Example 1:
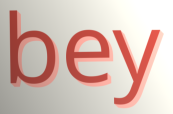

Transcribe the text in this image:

bey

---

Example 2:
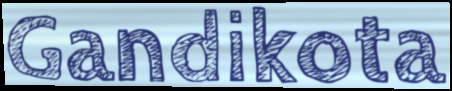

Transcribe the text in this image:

Gandikota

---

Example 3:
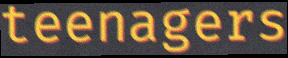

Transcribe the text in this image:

teenagers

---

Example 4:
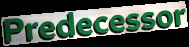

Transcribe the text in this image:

Predecessor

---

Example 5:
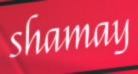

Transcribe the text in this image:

shamay